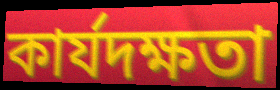
কাৰ্যদক্ষতা